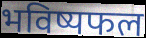
भविष्‍यफल